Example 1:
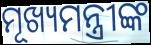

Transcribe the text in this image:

ମୂଖ୍ୟମନ୍ତ୍ରୀଙ୍କ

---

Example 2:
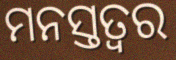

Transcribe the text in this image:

ମନସ୍ତତ୍ଵର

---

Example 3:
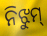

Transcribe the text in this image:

ନିଝୁମ୍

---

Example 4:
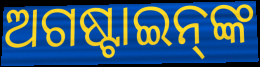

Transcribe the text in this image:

ଅଗଷ୍ଟାଇନ୍‌ଙ୍କ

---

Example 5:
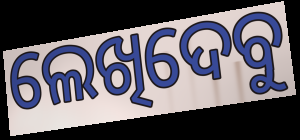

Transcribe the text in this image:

ଲେଖିଦେବୁ